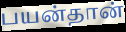
பயன்தான்